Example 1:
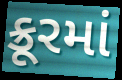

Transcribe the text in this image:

ક્રૂરમાં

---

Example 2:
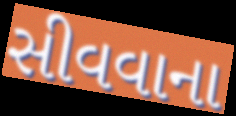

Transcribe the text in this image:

સીવવાના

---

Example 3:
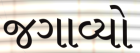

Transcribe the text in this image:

જગાવ્યો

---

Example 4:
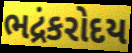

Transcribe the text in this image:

ભદ્રંકરોદય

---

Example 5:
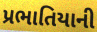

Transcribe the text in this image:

પ્રભાતિયાની